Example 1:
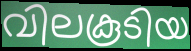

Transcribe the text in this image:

വിലകൂടിയ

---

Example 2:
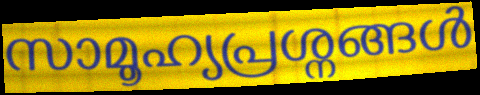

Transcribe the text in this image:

സാമൂഹ്യപ്രശ്നങ്ങൾ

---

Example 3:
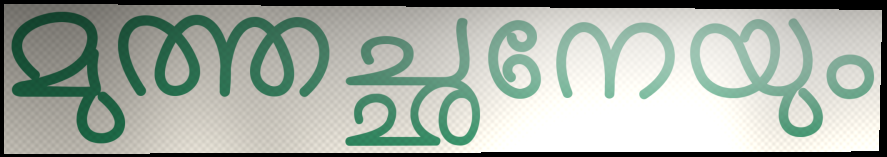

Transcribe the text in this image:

മുത്തച്ഛനേയും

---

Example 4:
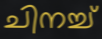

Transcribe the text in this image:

ചിനച്ച്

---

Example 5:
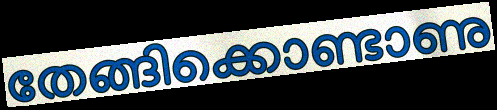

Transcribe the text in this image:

തേങ്ങിക്കൊണ്ടാണു